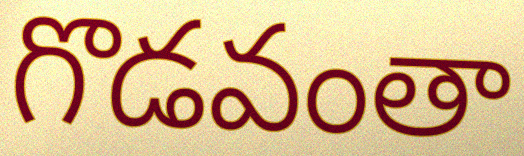
గొడవంతా